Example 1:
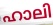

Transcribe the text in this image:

ഹാലി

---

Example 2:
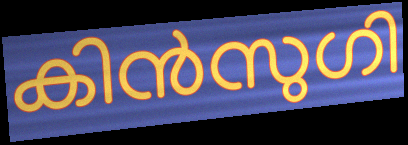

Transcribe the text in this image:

കിൻസുഗി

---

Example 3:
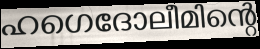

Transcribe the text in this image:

ഹഗെദോലീമിന്റെ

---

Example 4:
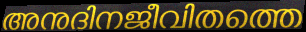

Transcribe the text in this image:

അനുദിനജീവിതത്തെ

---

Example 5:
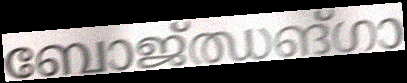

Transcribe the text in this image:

ബോജ്ഝങ്ഗാ